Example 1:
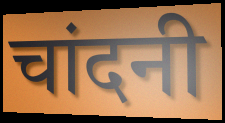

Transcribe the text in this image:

चांदनी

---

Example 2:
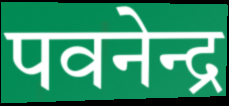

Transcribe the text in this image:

पवनेन्द्र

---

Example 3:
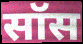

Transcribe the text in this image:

सॉस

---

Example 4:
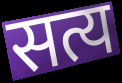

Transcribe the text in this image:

सत्य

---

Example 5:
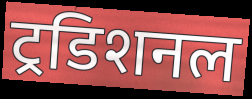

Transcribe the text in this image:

ट्रडिशनल